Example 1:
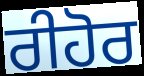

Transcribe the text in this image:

ਰੀਹੋਰ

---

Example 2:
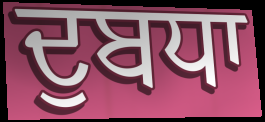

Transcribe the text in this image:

ਦੁਬਧਾ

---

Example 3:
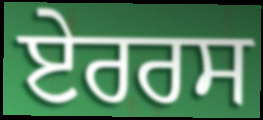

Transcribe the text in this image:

ਏਰਰਸ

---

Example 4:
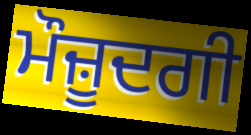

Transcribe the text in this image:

ਮੌਜ਼ੂਦਗੀ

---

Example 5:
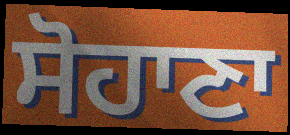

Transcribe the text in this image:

ਸੋਹਾਣਾ